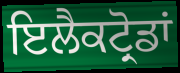
ਇਲੈਕਟ੍ਰੋਡਾਂ